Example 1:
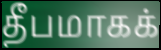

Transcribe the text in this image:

தீபமாகக்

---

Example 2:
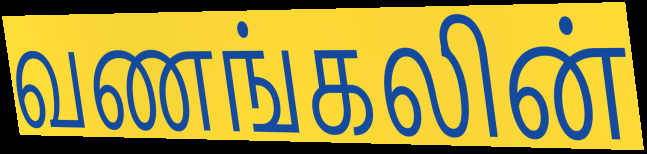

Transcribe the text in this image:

வணங்கலின்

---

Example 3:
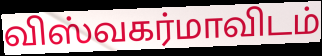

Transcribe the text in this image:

விஸ்வகர்மாவிடம்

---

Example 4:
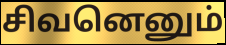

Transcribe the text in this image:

சிவனெனும்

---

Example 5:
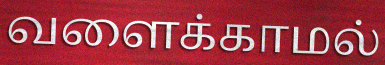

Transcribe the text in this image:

வளைக்காமல்